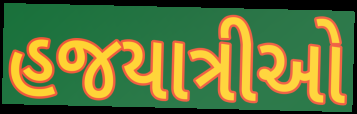
હજયાત્રીઓ